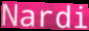
Nardi